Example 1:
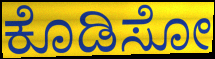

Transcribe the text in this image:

ಕೊಡಿಸೋ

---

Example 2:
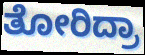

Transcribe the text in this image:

ತೋರಿದ್ರಾ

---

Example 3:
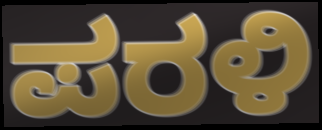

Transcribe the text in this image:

ಪರಳಿ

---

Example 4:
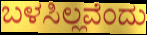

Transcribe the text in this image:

ಬಳಸಿಲ್ಲವೆಂದು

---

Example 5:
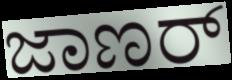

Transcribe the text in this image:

ಜಾಣರ್